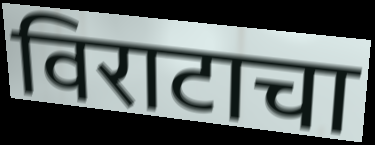
विराटाचा